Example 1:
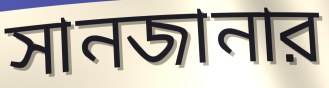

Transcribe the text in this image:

সানজানার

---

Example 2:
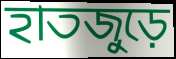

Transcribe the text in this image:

হাতজুড়ে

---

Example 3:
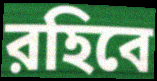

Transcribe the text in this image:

রহিবে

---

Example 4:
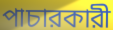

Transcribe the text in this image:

পাচারকারী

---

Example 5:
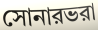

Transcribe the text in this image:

সোনারভরা